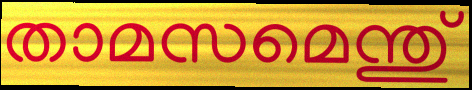
താമസമെന്തു്